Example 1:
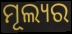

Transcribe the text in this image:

ମୂଲ୍ଯର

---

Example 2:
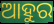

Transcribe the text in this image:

ଆହୁର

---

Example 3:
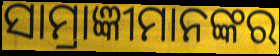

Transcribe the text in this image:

ସାମ୍ରାଜ୍ଞୀମାନଙ୍କର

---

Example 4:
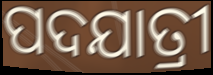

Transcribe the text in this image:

ପଦଯାତ୍ରୀ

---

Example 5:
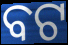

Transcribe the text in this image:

ବଟ